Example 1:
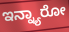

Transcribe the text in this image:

ಇನ್ನ್ಯಾರೋ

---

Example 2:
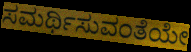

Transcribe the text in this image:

ಸಮರ್ಥಿಸುವಂತೆಯೇ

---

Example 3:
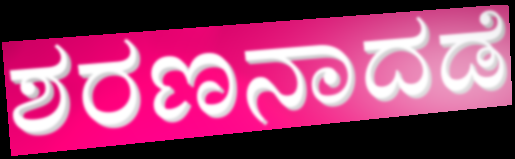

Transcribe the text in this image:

ಶರಣನಾದಡೆ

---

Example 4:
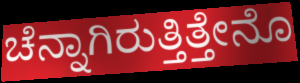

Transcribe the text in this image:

ಚೆನ್ನಾಗಿರುತ್ತಿತ್ತೇನೊ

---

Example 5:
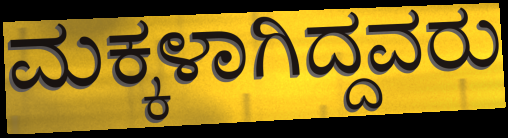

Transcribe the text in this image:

ಮಕ್ಕಳಾಗಿದ್ದವರು